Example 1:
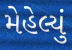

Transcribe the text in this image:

મેહેલ્યું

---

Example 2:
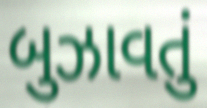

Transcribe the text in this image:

બુઝાવતું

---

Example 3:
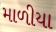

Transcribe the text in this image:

માળીયા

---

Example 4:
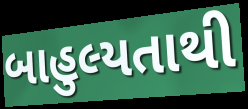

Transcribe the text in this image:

બાહુલ્યતાથી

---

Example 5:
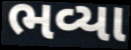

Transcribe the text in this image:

ભવ્યા